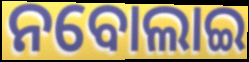
ନବୋଲାଇ